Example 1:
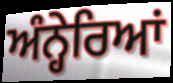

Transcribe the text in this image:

ਅੰਨ੍ਹੇਰਿਆਂ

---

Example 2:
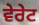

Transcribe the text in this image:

ਵੇਰੇਟ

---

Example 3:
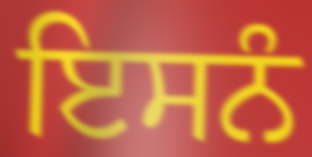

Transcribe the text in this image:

ਇਸਨੰ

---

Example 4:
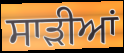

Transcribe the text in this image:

ਸਾਡ਼ੀਆਂ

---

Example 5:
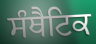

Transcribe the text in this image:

ਸੰਥੈਟਿਕ